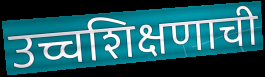
उच्चशिक्षणाची